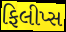
ફિલીપ્સ